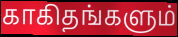
காகிதங்களும்